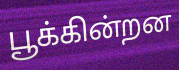
பூக்கின்றன